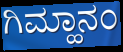
ಗಿಮ್ಹಾನಂ